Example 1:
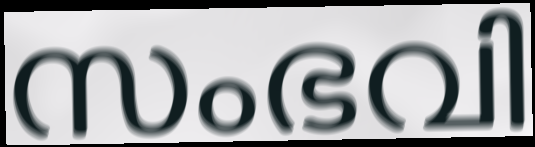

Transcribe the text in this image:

സംഭവി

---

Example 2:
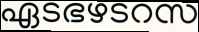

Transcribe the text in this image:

ഏടഭഴടറസ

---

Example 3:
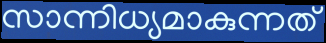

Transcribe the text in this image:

സാന്നിധ്യമാകുന്നത്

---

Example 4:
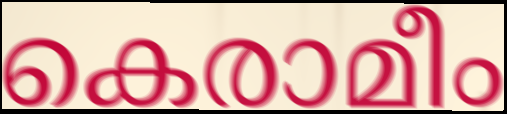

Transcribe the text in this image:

കെരാമീം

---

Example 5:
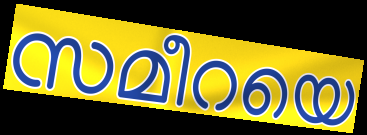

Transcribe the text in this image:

സമീറയെ